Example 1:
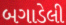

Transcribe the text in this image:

બગાડેલી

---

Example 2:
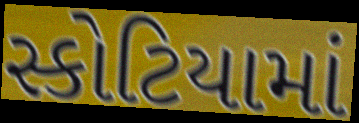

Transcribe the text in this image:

સ્કોટિયામાં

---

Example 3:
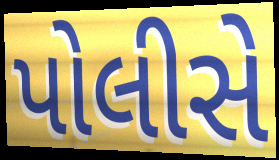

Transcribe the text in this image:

પોલીસે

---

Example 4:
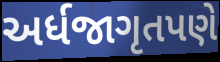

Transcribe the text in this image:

અર્ધજાગૃતપણે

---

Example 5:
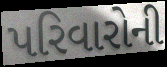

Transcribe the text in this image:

પરિવારોની